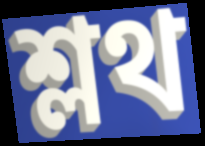
শ্লথ